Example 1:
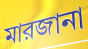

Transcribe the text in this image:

মারজানা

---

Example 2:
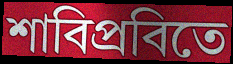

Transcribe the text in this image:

শাবিপ্রবিতে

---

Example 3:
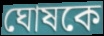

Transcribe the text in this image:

ঘোষকে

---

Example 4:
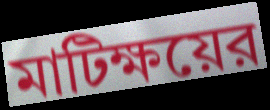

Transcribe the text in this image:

মাটিক্ষয়ের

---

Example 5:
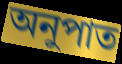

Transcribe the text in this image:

অনুপাত